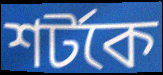
শর্টকে